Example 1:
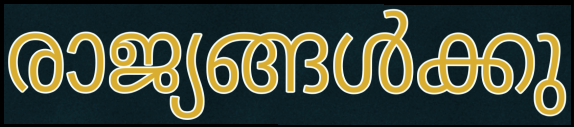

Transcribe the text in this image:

രാജ്യങ്ങൾക്കു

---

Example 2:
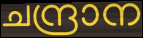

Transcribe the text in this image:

ചന്ദ്രാന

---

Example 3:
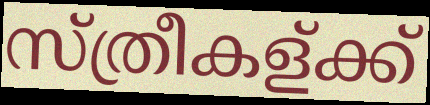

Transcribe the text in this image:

സ്ത്രീകള്ക്ക്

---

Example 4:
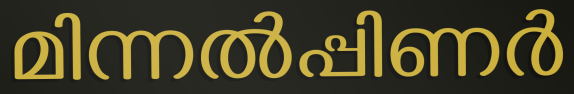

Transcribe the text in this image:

മിന്നൽപ്പിണർ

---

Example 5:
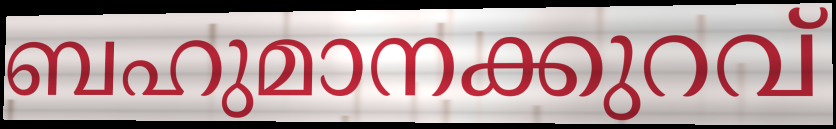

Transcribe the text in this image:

ബഹുമാനക്കുറവ്